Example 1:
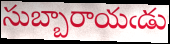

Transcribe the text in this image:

సుబ్బారాయఁడు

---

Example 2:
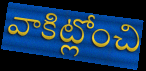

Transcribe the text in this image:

వాకిట్లోంచి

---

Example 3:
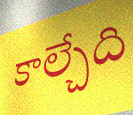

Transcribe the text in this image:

కాల్చేది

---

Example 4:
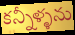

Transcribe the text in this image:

కన్నీళ్ళను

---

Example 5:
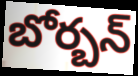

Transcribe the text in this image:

బోర్బన్